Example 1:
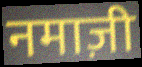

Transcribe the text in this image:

नमाज़ी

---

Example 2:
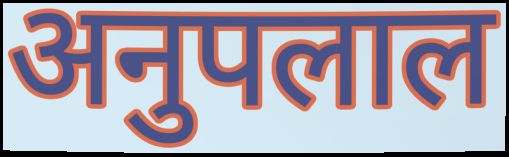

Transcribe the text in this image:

अनुपलाल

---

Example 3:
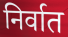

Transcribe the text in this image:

निर्वात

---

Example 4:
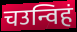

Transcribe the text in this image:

चउन्विहं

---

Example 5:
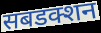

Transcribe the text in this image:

सबडक्शन